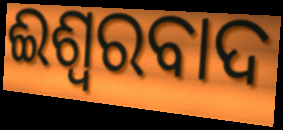
ଈଶ୍ବରବାଦ